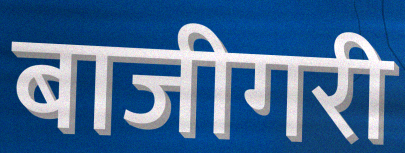
बाजीगरी